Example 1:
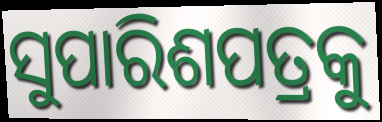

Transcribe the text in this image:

ସୁପାରିଶପତ୍ରକୁ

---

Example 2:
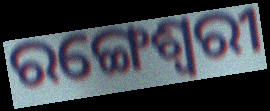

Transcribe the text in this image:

ରଙ୍ଗେଶ୍ୱରୀ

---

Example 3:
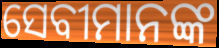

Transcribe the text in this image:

ସେବୀମାନଙ୍କ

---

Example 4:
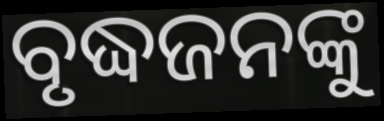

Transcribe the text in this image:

ବୃଦ୍ଧଜନଙ୍କୁ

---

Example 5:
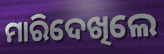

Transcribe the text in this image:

ମାରିଦେଖିଲେ